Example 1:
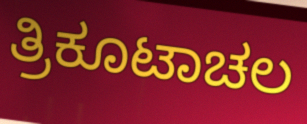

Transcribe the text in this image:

ತ್ರಿಕೂಟಾಚಲ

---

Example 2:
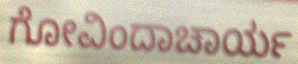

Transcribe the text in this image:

ಗೋವಿಂದಾಚಾರ್ಯ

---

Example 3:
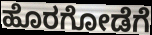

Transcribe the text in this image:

ಹೊರಗೋಡೆಗೆ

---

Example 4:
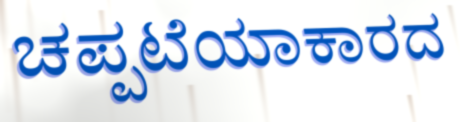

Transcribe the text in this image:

ಚಪ್ಪಟೆಯಾಕಾರದ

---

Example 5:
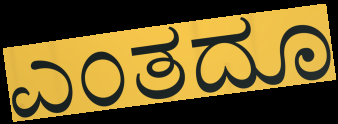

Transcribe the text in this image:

ಎಂತದೂ